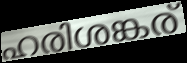
ഹരിശങ്കര്